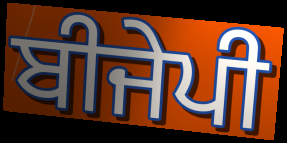
ਬੀਜੇਪੀ